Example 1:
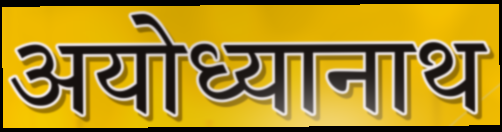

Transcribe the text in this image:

अयोध्यानाथ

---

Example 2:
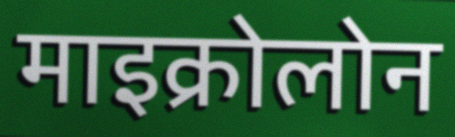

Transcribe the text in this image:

माइक्रोलोन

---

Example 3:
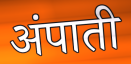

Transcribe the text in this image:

अंपाती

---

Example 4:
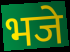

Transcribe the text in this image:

भजे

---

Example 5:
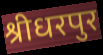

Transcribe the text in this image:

श्रीधरपुर